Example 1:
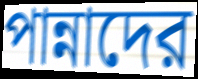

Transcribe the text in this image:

পান্নাদের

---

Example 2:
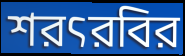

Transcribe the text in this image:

শরৎরবির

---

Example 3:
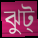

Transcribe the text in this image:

ঝুট্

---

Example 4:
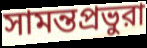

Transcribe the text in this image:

সামন্তপ্রভুরা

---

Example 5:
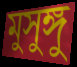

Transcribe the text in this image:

মুসুঙ্গু